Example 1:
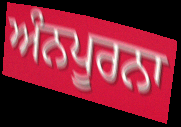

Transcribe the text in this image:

ਅੰਨਪੂਰਨਾ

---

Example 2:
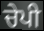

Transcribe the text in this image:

ਚੇਪੀ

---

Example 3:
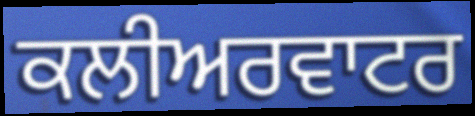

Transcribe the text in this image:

ਕਲੀਅਰਵਾਟਰ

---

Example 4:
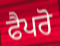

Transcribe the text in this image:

ਫੈਪਰੋ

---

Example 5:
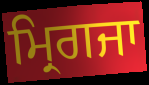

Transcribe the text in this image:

ਮ੍ਰਿਗਜਾ